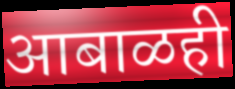
आबाळही